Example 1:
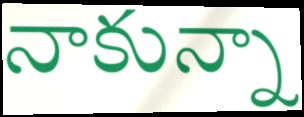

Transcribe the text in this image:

నాకున్నా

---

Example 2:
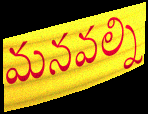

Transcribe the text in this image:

మనవల్ని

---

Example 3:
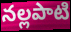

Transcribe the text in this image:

నల్లపాటి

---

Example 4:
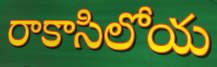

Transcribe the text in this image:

రాకాసిలోయ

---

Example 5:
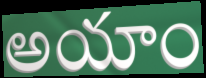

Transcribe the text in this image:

అయాం